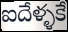
ఐదేళ్ళకే